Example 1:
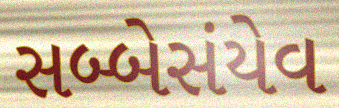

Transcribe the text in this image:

સબ્બેસંયેવ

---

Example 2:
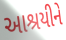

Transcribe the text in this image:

આશ્રયીને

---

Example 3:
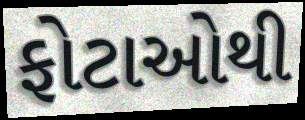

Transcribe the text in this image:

ફોટાઓથી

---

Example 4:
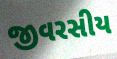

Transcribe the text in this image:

જીવરસીય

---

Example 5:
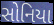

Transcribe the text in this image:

સોનિયા